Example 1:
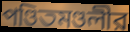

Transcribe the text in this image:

পণ্ডিতমণ্ডলীর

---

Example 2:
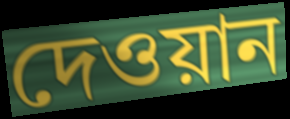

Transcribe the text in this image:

দেওয়ান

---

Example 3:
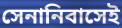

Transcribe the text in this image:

সেনানিবাসেই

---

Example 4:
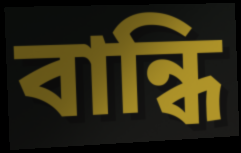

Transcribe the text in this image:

বান্ধি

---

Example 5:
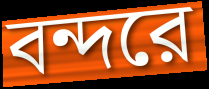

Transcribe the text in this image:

বন্দরে